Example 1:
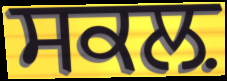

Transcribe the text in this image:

ਸਕਲ਼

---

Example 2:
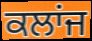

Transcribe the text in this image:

ਕਲਾਂਜ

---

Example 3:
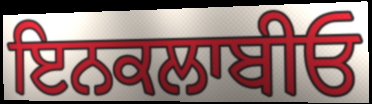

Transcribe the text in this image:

ਇਨਕਲਾਬੀਓ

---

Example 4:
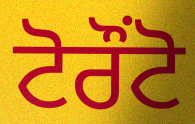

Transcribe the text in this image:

ਟੋਰੌੰਟੋ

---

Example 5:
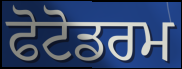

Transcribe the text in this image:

ਫੋਟੋਡਰਮ